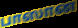
பாஸான